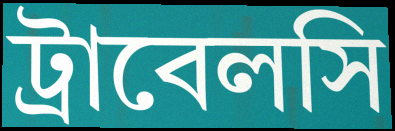
ট্রাবেলসি